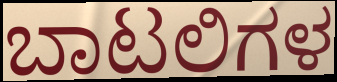
ಬಾಟಲಿಗಳ